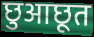
छुआछूत